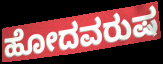
ಹೋದವರುಷ